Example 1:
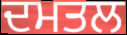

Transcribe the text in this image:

ਦਮਤਲ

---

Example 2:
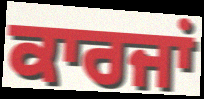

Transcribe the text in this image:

ਕਾਰਜਾਂ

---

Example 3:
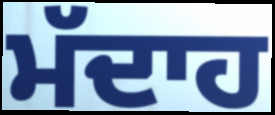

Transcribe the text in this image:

ਮੱਦਾਹ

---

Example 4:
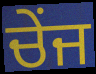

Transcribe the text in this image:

ਚੇਂਜ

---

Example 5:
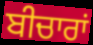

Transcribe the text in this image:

ਬੀਚਾਰਾਂ